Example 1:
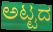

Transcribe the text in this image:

ಅಟ್ಟದ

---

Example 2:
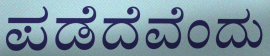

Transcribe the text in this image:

ಪಡೆದೆವೆಂದು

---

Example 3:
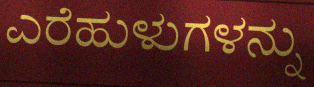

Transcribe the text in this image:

ಎರೆಹುಳುಗಳನ್ನು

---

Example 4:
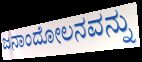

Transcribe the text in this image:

ಜನಾಂದೋಲನವನ್ನು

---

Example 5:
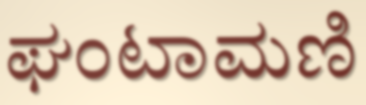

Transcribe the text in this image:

ಘಂಟಾಮಣಿ